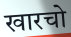
खारचो